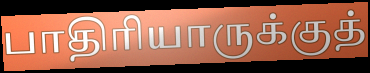
பாதிரியாருக்குத்